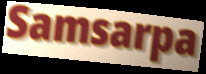
Samsarpa